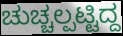
ಚುಚ್ಚಲ್ಪಟ್ಟಿದ್ದ